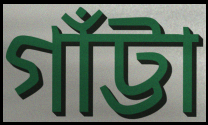
গাঁট্টা